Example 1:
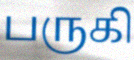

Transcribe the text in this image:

பருகி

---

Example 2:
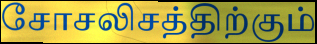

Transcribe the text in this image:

சோசலிசத்திற்கும்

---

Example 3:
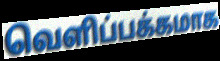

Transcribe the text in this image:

வெளிப்பக்கமாக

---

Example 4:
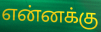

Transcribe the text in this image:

என்னக்கு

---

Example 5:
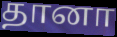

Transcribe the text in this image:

தானா